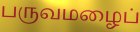
பருவமழைப்